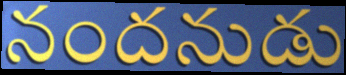
నందనుడు